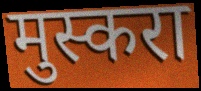
मुस्करा